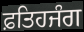
ਫ਼ਤਿਹਜੰਗ